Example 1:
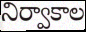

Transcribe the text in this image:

నిర్వాకాల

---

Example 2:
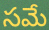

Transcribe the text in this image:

సమే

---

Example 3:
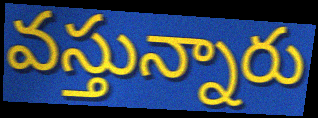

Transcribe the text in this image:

వస్తున్నారు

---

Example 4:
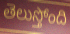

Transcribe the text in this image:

తెలుస్తోంది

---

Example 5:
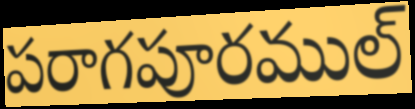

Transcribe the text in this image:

పరాగపూరముల్